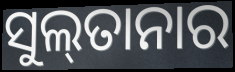
ସୁଲ୍‌ତାନାର